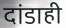
दांडाही